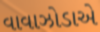
વાવાઝોડાએ